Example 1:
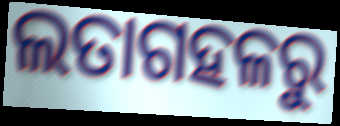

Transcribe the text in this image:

ଲତାଗହଳରୁ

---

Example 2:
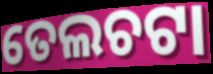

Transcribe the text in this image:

ତେଲଚଟା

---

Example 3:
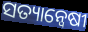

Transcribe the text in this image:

ସତ୍ୟାନ୍ଵେଷୀ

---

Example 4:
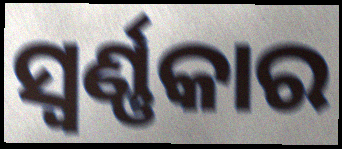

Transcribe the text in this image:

ସ୍ୱର୍ଣ୍ଣକାର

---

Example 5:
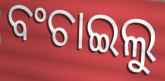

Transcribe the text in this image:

ବଂଚାଇଲୁ